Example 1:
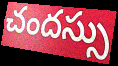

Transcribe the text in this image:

చందస్సు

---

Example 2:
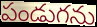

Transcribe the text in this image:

పండుగను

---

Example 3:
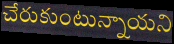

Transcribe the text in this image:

చేరుకుంటున్నాయని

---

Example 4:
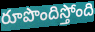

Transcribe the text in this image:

రూపొందిస్తోంది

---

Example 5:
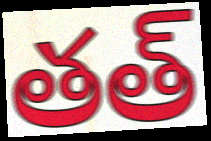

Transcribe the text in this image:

తత్